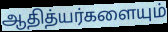
ஆதித்யர்களையும்